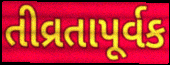
તીવ્રતાપૂર્વક